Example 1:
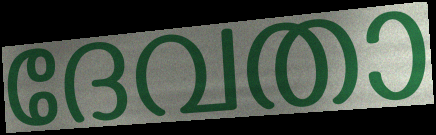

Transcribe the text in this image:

ദേവതാ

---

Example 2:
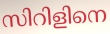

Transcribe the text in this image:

സിറിളിനെ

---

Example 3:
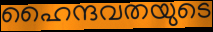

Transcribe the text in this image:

ഹൈന്ദവതയുടെ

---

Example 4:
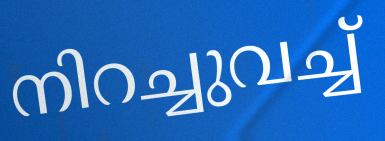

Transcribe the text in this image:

നിറച്ചുവച്ച്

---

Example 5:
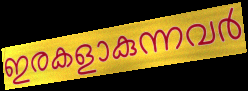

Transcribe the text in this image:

ഇരകളാകുന്നവർ